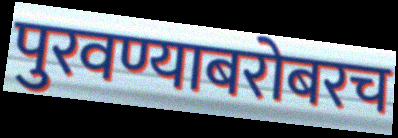
पुरवण्याबरोबरच